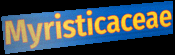
Myristicaceae